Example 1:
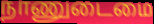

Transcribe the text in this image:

நாணுடைமை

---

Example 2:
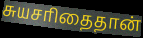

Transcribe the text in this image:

சுயசரிதைதான்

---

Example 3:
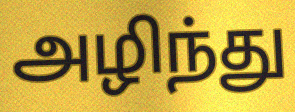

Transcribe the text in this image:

அழிந்து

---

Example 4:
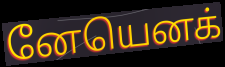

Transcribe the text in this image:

னேயெனக்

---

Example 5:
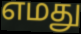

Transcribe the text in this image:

எமது